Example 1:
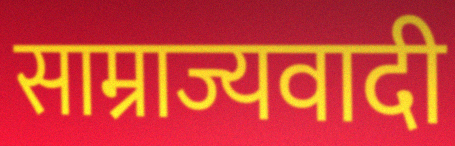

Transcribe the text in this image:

साम्राज्यवादी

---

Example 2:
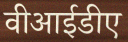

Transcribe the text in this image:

वीआईडीए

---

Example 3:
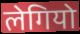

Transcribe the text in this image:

लेगियो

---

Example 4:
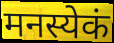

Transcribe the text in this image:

मनस्येकं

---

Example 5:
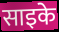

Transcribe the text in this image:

साइके